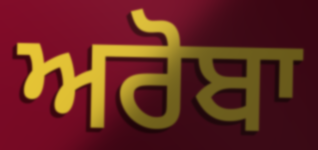
ਅਰੋਬਾ